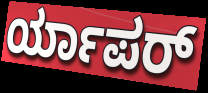
ರ್ಯಾಪರ್